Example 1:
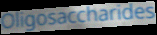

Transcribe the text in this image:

Oligosaccharides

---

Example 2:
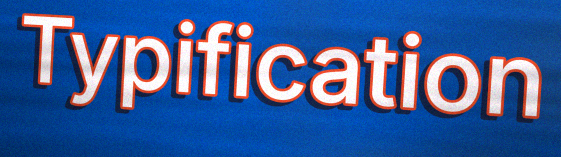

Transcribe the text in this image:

Typification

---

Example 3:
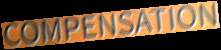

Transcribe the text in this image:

COMPENSATION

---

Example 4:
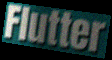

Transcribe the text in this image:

Flutter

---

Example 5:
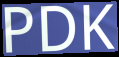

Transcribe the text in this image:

PDK